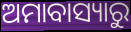
ଅମାବାସ୍ୟାରୁ